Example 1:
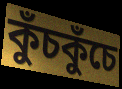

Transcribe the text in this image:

কুঁচকুঁচে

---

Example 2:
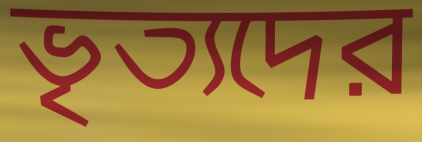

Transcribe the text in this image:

ভৃত্যদের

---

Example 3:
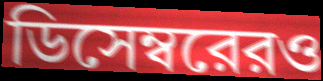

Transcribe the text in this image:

ডিসেম্বরেরও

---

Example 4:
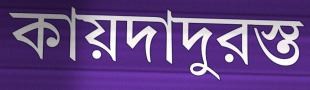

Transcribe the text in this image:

কায়দাদুরস্ত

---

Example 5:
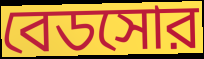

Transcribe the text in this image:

বেডসোর